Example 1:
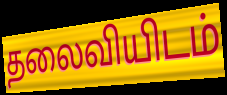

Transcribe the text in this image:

தலைவியிடம்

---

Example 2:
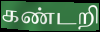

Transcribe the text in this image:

கண்டறி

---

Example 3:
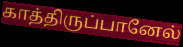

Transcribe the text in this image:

காத்திருப்பானேல்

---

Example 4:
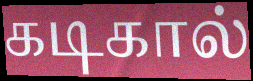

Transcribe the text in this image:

கடிகால்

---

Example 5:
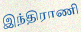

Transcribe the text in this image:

இந்திராணி